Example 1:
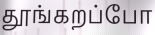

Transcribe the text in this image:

தூங்கறப்போ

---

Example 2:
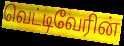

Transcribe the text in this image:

வெட்டிவேரின்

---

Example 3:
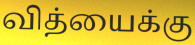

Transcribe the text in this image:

வித்யைக்கு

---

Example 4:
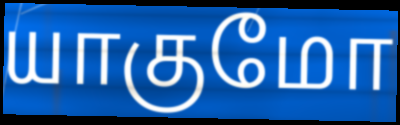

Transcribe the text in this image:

யாகுமோ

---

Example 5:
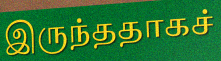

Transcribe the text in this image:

இருந்ததாகச்